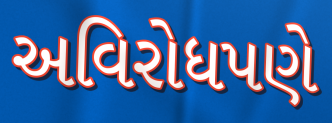
અવિરોધપણે